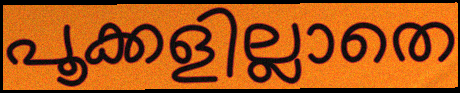
പൂക്കളില്ലാതെ